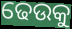
ଢେଉକୁ